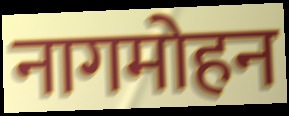
नागमोहन